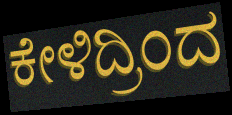
ಕೇಳಿದ್ರಿಂದ